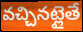
వచ్చినట్లైతే